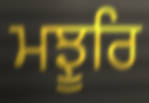
ਮਝੂਰਿ